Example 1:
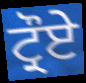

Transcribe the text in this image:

ਟ੍ਰੌਏ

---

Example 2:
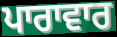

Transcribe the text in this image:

ਪਾਰਾਵਾਰ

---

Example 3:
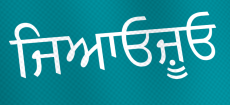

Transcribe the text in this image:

ਜਿਆਓਜ਼ੂਓ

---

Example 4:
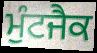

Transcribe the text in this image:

ਮੁੰਟਜੈਕ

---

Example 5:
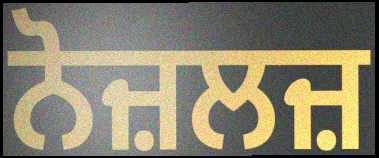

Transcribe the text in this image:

ਨੋਜ਼ਲਜ਼